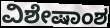
ವಿಶೇಷಾಂಶ